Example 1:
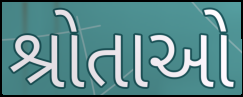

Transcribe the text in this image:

શ્રોતાઓ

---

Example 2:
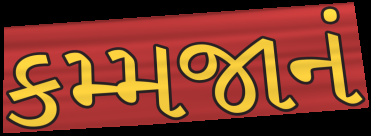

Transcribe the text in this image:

કમ્મજાનં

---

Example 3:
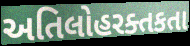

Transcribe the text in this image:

અતિલોહરક્તકતા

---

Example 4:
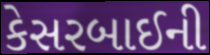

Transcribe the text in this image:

કેસરબાઈની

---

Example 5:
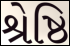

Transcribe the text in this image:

શ્રેષ્ઠિ